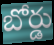
బోర్డు